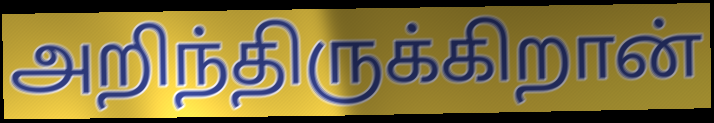
அறிந்திருக்கிறான்